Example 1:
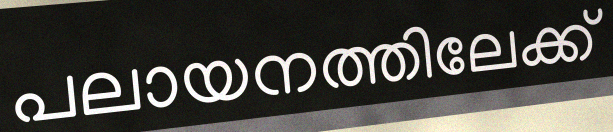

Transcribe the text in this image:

പലായനത്തിലേക്ക്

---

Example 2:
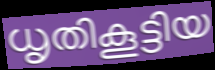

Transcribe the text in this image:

ധൃതികൂട്ടിയ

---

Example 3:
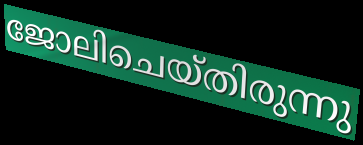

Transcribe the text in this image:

ജോലിചെയ്തിരുന്നു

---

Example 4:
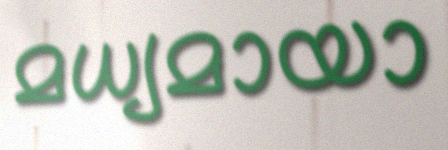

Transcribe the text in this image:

മധ്യമായാ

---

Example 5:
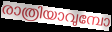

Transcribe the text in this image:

രാത്രിയാവുമ്പോ